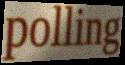
polling